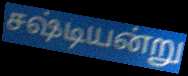
சஷ்டியன்று